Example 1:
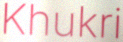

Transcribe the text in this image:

Khukri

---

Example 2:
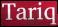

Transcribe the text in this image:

Tariq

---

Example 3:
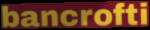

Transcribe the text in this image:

bancrofti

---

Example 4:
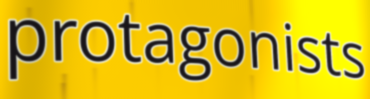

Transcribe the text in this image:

protagonists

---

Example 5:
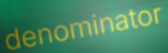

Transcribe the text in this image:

denominator